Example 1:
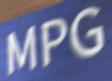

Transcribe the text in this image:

MPG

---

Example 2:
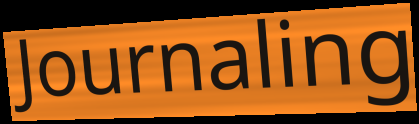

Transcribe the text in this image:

Journaling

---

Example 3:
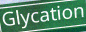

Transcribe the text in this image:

Glycation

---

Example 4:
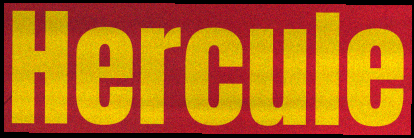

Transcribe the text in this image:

Hercule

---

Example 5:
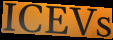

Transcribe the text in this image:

ICEVs